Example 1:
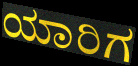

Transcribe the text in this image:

ಯಾರಿಗ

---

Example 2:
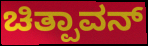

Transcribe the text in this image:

ಚಿತ್ಪಾವನ್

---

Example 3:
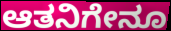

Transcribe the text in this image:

ಆತನಿಗೇನೂ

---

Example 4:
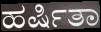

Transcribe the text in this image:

ಹರ್ಷಿತಾ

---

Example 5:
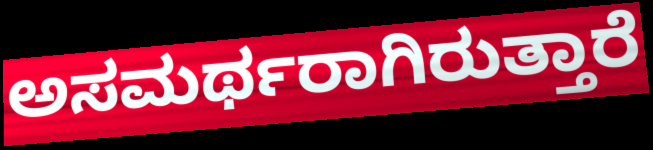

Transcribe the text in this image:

ಅಸಮರ್ಥರಾಗಿರುತ್ತಾರೆ